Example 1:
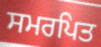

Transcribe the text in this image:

ਸਮਰਪਿਤ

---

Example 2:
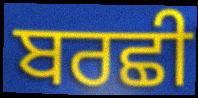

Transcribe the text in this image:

ਬਰਛੀ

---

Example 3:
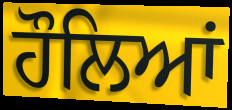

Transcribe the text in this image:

ਹੌਲਿਆਂ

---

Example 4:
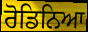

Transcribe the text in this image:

ਰੋਡਿਨਿਆ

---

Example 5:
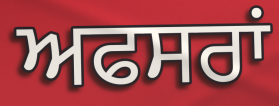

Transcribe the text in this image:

ਅਫਸਰਾਂ